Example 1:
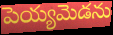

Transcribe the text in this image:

పెయ్యమెడను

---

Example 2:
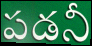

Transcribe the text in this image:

పడనీ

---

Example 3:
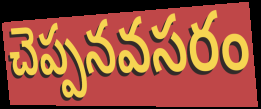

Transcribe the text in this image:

చెప్పనవసరం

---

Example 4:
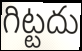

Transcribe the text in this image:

గిట్టదు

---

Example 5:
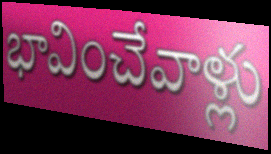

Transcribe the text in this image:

భావించేవాళ్లు